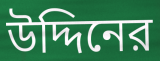
উদ্দিনের